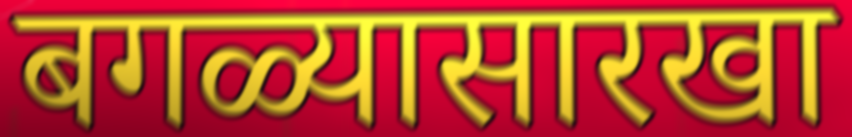
बगळ्यासारखा